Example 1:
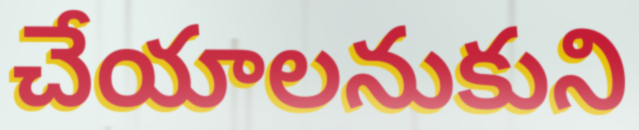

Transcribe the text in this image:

చేయాలనుకుని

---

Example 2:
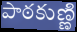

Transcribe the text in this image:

పాఠకుణ్ణి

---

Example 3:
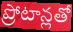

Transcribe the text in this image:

ప్రోటాన్లతో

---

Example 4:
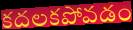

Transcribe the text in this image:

కదలకపోవడం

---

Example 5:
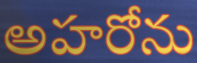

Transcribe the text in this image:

అహరోను